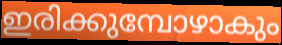
ഇരിക്കുമ്പോഴാകും